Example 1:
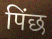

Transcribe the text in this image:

पिंछ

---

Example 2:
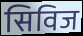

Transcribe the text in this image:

सिविज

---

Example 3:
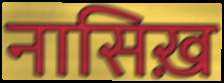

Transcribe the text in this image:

नासिख़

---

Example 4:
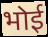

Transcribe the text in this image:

भोई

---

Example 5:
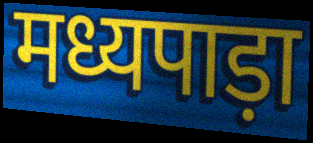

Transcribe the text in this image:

मध्यपाड़ा